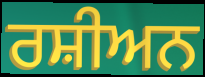
ਰਸ਼ੀਅਨ